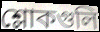
শ্লোকগুলি